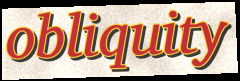
obliquity